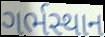
ગર્ભસ્થાન